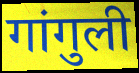
गांगुली